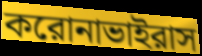
করোনাভাইরাস